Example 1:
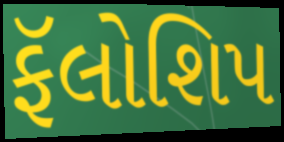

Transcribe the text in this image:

ફૅલોશિપ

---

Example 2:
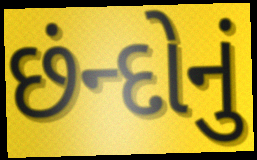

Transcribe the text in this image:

છંન્દોનું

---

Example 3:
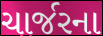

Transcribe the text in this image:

ચાર્જરના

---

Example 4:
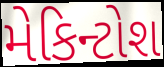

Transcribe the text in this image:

મેકિન્ટોશ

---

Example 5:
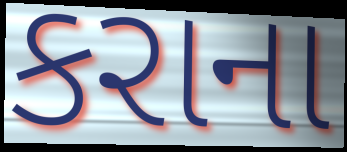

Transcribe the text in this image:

કરાના